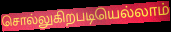
சொல்லுகிறபடியெல்லாம்